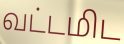
வட்டமிட